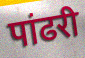
पांढरी